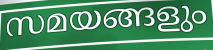
സമയങ്ങളും